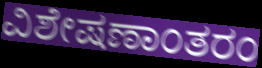
ವಿಶೇಷಣಾಂತರಂ